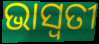
ଭାସ୍ବତୀ